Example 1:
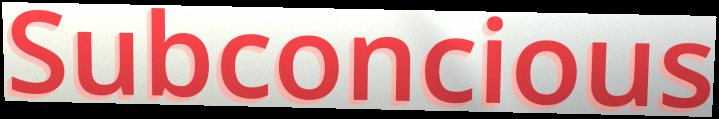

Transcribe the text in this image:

Subconcious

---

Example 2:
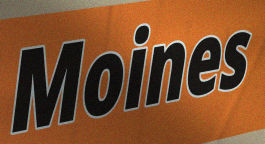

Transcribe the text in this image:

Moines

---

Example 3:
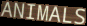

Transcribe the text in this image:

ANIMALS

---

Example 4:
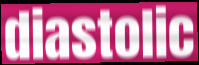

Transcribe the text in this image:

diastolic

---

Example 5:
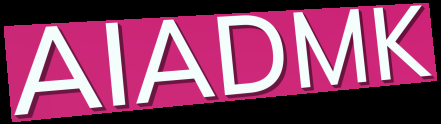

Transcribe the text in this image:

AIADMK